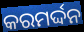
କରମର୍ଦ୍ଦନ